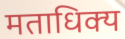
मताधिक्य